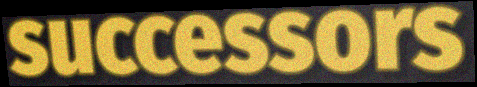
successors